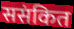
ससंकित